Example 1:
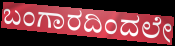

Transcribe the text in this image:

ಬಂಗಾರದಿಂದಲೇ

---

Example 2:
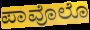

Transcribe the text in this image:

ಪಾವೊಲೊ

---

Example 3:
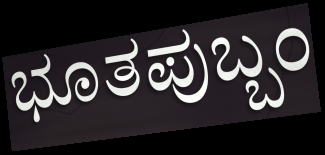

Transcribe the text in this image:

ಭೂತಪುಬ್ಬಂ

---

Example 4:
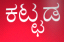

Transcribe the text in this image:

ಕಟ್ಟಡ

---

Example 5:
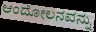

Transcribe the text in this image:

ಆಂದೋಲನವನ್ನು